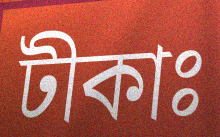
টীকাঃ